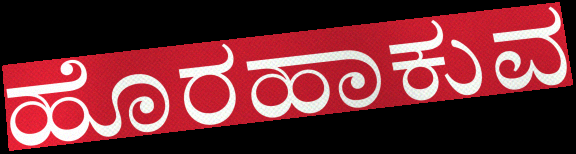
ಹೊರಹಾಕುವ